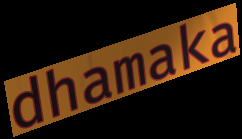
dhamaka